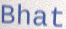
Bhat